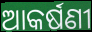
ଆକର୍ଷଣୀ